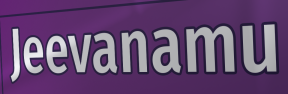
Jeevanamu